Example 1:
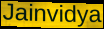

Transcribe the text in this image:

Jainvidya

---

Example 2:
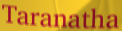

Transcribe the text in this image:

Taranatha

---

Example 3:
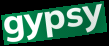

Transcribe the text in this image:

gypsy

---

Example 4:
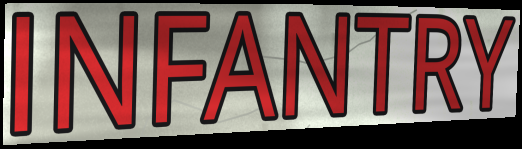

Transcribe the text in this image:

INFANTRY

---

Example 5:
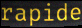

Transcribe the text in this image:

rapide